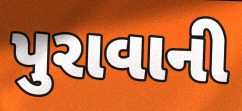
પુરાવાની